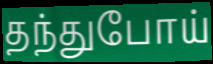
தந்துபோய்